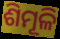
ଶିମୂଳି